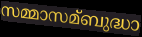
സമ്മാസമ്ബുദ്ധാ